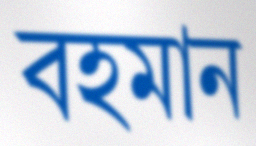
বহমান